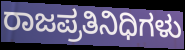
ರಾಜಪ್ರತಿನಿಧಿಗಳು